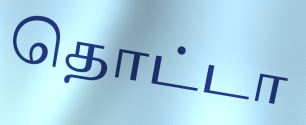
தொட்டா